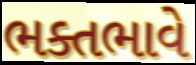
ભક્તભાવે